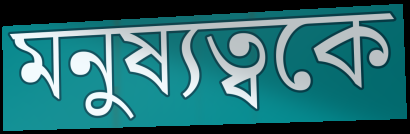
মনুষ্যত্বকে